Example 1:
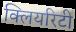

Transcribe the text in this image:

क्लियरिटी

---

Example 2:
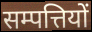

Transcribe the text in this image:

सम्पत्तियों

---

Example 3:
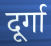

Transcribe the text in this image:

दूर्गा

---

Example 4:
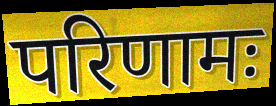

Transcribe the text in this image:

परिणामः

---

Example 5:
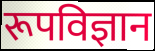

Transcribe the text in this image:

रूपविज्ञान